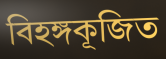
বিহঙ্গকূজিত